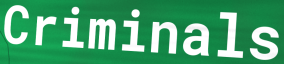
Criminals